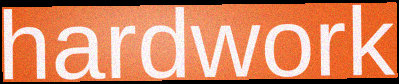
hardwork